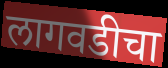
लागवडीचा